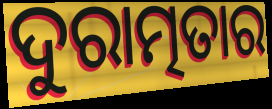
ଦୁରାତ୍ମତାର